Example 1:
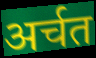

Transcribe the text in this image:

अर्चत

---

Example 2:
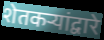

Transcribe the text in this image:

शेतकऱ्यांद्वारे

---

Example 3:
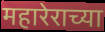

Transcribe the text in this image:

महारेराच्या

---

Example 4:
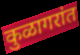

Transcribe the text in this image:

कुळागरांत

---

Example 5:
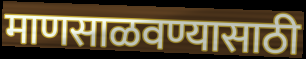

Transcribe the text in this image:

माणसाळवण्यासाठी